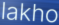
lakho